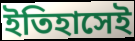
ইতিহাসেই